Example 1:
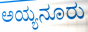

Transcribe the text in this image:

ಅಯ್ಯನೂರು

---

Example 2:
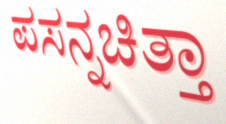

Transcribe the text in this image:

ಪಸನ್ನಚಿತ್ತಾ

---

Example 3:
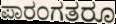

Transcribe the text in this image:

ಪಾರಂಗತರೂ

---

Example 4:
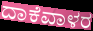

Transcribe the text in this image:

ದಾಕೆವಾಳರ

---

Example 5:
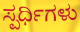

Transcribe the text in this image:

ಸ್ಪರ್ಧಿಗಳು